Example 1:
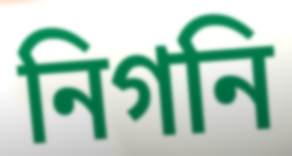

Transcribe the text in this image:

নিগনি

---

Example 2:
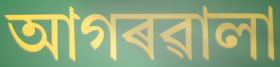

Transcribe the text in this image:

আগৰৱালা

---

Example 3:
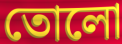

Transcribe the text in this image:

তোলো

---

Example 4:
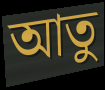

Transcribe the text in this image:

আতু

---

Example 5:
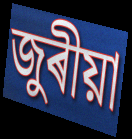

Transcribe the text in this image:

জুৰীয়া